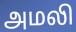
அமலி